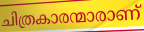
ചിത്രകാരന്മാരാണ്